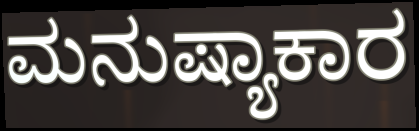
ಮನುಷ್ಯಾಕಾರ